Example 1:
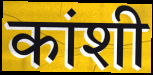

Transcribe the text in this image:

कांशी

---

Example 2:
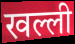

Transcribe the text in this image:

खल्ली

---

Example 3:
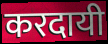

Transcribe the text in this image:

करदायी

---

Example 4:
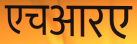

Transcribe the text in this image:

एचआरए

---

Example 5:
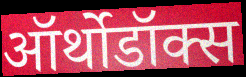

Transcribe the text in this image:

ऑर्थोडॉक्स